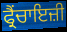
ਫ੍ਰੈਂਚਾਇਜ਼ੀ